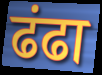
ढंढा